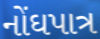
નોંઘપાત્ર